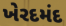
ખેરદમંદ